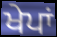
ਖੇਪਾਂ